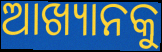
ଆଖ୍ୟାନକୁ